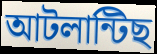
আটলান্টিছ